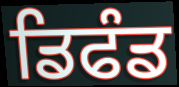
ਡਿਫੰਡ